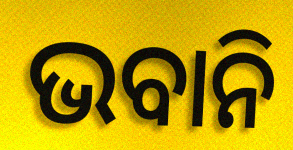
ଭବାନି